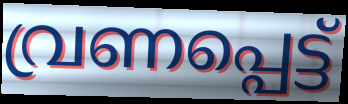
വ്രണപ്പെട്ട്